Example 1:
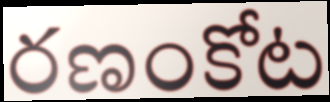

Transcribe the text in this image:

రణంకోట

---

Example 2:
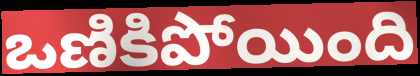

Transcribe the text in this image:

ఒణికిపోయింది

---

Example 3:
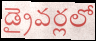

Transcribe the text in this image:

డ్రైవర్లలో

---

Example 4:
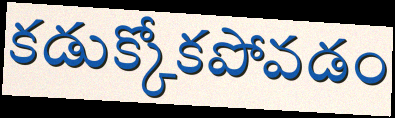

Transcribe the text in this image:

కడుక్కోకపోవడం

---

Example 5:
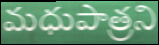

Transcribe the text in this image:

మధుపాత్రని